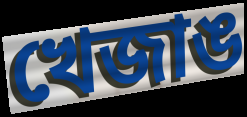
খেজাঙ